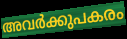
അവർക്കുപകരം